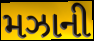
મઝાની